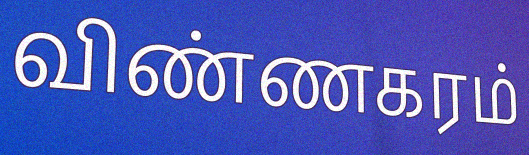
விண்ணகரம்